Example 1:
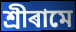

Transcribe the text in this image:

শ্ৰীৰামে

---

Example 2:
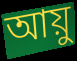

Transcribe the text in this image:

আয়ু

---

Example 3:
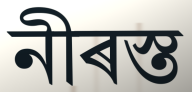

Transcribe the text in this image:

নীৰস্ত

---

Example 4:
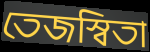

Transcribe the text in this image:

তেজস্বিতা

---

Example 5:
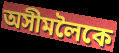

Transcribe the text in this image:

অসীমলৈকে